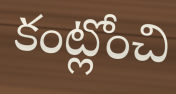
కంట్లోంచి